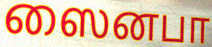
ஸைனபா